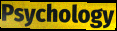
Psychology